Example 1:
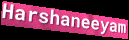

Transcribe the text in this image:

Harshaneeyam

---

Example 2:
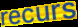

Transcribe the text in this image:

recurs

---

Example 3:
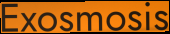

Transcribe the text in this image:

Exosmosis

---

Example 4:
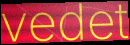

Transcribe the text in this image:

vedet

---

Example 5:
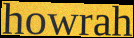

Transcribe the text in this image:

howrah